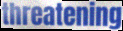
threatening